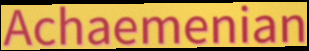
Achaemenian